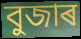
বুজাৰ